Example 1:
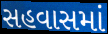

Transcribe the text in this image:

સહવાસમાં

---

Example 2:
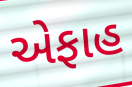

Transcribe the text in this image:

એફાહ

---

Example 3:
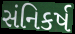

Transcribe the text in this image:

સંનિકર્ષ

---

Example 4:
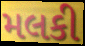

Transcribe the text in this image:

મલકી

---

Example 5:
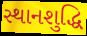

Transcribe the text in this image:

સ્થાનશુદ્ધિ